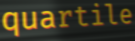
quartile